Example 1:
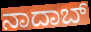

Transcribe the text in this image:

ನಾದಾಬ್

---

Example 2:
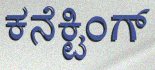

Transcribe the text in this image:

ಕನೆಕ್ಟಿಂಗ್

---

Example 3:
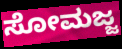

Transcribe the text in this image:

ಸೋಮಜ್ಜ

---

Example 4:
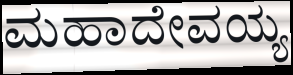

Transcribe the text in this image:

ಮಹಾದೇವಯ್ಯ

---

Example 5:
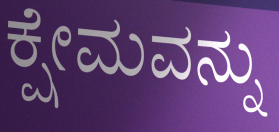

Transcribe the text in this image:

ಕ್ಷೇಮವನ್ನು